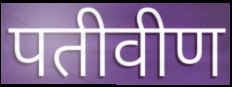
पतीवीण